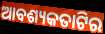
ଆବଶ୍ୟକତାଟିର